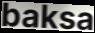
baksa